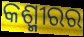
କଶ୍ମୀରର